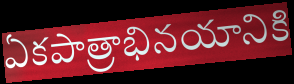
ఏకపాత్రాభినయానికి